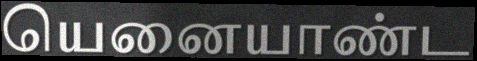
யெனையாண்ட